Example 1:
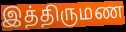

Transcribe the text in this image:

இத்திருமண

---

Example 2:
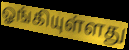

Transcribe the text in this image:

ஓங்கியுள்ளது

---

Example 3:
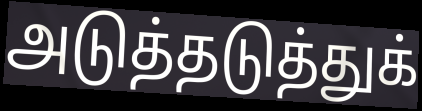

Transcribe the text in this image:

அடுத்தடுத்துக்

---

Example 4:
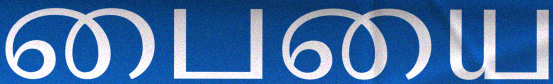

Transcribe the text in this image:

பையை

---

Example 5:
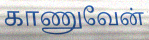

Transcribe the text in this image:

காணுவேன்